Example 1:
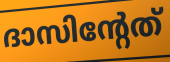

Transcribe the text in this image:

ദാസിന്റേത്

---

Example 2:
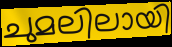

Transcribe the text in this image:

ചുമലിലായി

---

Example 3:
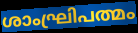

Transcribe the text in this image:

ശാംഘ്രിപത്മം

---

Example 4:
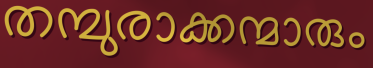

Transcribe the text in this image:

തമ്പുരാക്കന്മാരും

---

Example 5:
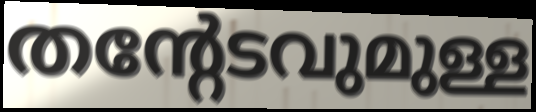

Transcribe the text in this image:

തന്റേടവുമുള്ള